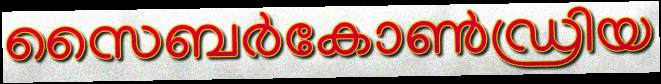
സൈബർകോൺഡ്രിയ